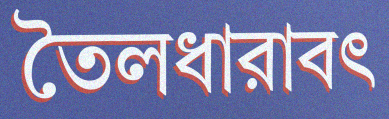
তৈলধারাবৎ